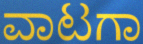
ವಾಟಗಾ